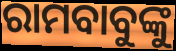
ରାମବାବୁଙ୍କୁ